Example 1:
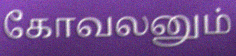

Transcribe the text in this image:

கோவலனும்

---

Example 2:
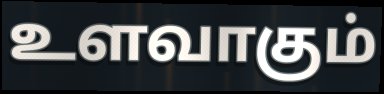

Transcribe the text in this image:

உளவாகும்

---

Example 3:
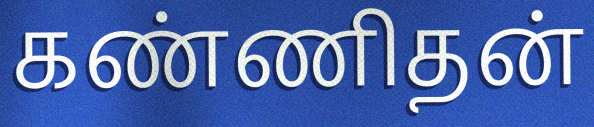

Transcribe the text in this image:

கண்ணிதன்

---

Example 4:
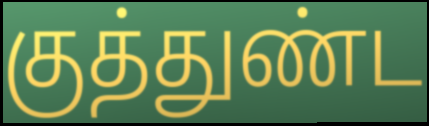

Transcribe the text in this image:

குத்துண்ட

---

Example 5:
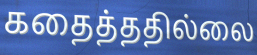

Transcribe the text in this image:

கதைத்ததில்லை